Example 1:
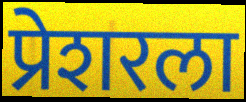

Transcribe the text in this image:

प्रेशरला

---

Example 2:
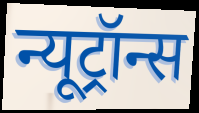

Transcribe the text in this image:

न्यूट्रॉन्स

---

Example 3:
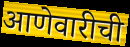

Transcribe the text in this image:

आणेवारीची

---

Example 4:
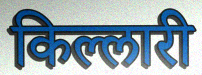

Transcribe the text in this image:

किल्लारी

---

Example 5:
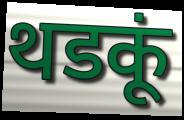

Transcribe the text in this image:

थडकूं